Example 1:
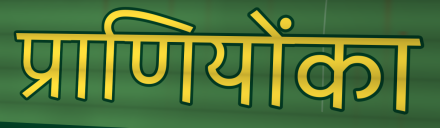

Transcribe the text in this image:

प्राणियोंका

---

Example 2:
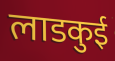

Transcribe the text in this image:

लाडकुई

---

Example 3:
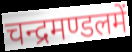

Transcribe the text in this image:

चन्द्रमण्डलमें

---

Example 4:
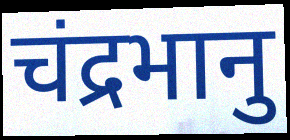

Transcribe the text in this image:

चंद्रभानु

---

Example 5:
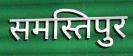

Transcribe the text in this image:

समस्तिपुर